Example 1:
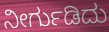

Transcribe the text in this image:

ನೀರ್ಗುಡಿದು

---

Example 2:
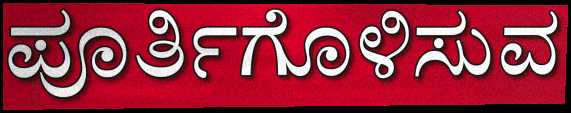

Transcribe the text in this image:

ಪೂರ್ತಿಗೊಳಿಸುವ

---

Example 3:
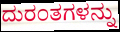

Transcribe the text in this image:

ದುರಂತಗಳನ್ನು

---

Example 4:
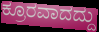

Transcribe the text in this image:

ಕ್ರೂರವಾದದ್ದು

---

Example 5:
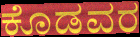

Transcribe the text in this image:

ಕೊಡವರ